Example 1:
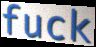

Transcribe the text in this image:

fuck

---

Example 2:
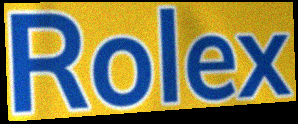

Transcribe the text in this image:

Rolex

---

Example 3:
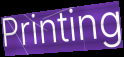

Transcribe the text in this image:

Printing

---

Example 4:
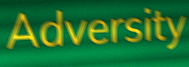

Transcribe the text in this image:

Adversity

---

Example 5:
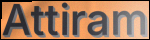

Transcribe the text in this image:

Attiram